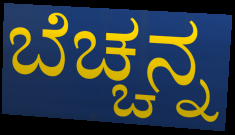
ಬೆಚ್ಚನ್ನ